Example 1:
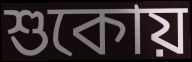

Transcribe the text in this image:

শুকোয়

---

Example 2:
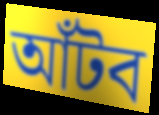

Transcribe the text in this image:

আঁটব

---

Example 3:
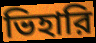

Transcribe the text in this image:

ভিহারি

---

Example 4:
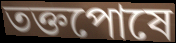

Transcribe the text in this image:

তক্তপোষে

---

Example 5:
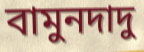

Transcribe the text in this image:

বামুনদাদু